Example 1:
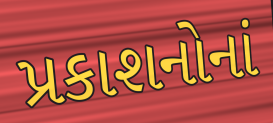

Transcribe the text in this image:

પ્રકાશનોનાં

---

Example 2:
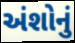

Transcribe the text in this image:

અંશોનું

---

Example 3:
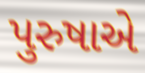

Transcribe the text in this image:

પુરુષાએ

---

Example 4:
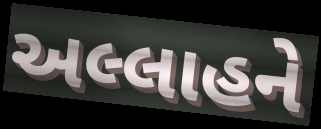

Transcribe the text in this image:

અલ્લાહને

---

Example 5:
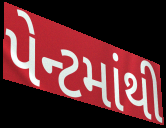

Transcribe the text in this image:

પેન્ટમાંથી